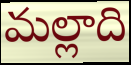
మల్లాది